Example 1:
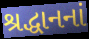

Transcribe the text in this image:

શ્રદ્ધાનનાં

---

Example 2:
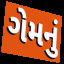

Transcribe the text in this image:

ગેમનું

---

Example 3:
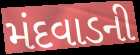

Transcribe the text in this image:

મંદવાડની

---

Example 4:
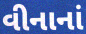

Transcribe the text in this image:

વીનાનાં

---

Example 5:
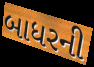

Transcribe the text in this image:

બાધરની